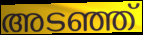
അടഞ്ഞ്